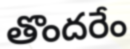
తొందరేం